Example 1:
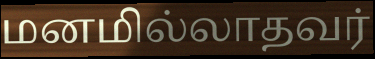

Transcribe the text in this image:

மனமில்லாதவர்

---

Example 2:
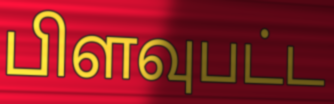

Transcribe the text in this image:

பிளவுபட்ட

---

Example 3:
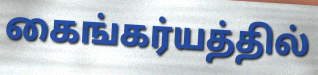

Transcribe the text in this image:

கைங்கர்யத்தில்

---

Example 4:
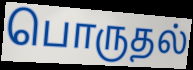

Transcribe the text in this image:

பொருதல்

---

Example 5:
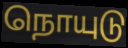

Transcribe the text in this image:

நொயுடு